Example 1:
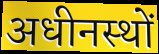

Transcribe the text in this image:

अधीनस्थों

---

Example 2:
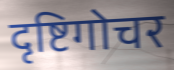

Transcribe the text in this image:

दृष्टिगोचर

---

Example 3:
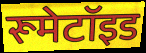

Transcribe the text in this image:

रूमेटॉइड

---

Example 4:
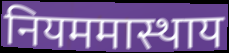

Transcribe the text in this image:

नियममास्थाय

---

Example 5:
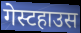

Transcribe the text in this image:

गेस्टहाउस